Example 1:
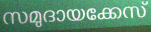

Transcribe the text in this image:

സമുദായക്കേസ്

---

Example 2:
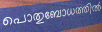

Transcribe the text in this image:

പൊതുബോധത്തിൽ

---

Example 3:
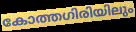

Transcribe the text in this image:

കോത്തഗിരിയിലും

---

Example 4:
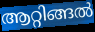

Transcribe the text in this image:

ആറ്റിങ്ങൽ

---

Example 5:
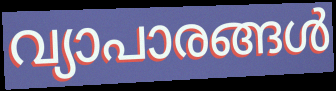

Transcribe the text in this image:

വ്യാപാരങ്ങൾ